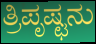
ತ್ರಿಪೃಷ್ಟನು